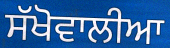
ਸੱਖੋਵਾਲੀਆ